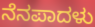
ನೆನಪಾದಳು